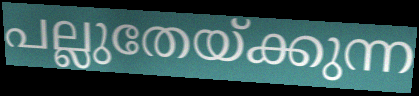
പല്ലുതേയ്ക്കുന്ന